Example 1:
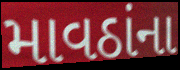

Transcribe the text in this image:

માવઠાંના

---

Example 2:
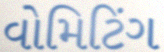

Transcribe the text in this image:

વોમિટિંગ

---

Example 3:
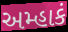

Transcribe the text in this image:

અમ્હાકં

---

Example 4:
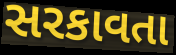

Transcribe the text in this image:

સરકાવતા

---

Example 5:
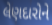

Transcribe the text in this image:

લેણદારોને